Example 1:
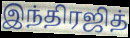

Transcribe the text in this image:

இந்திரஜித்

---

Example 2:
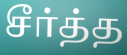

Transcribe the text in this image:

சீர்த்த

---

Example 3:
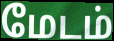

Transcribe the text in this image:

மேடம்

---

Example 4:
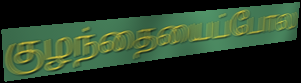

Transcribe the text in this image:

குழந்தையைப்போல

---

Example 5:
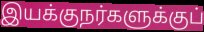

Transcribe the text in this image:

இயக்குநர்களுக்குப்